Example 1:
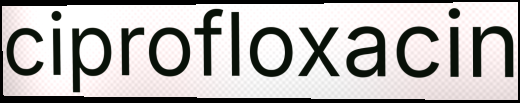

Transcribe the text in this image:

ciprofloxacin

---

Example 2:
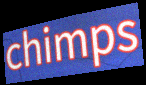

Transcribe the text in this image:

chimps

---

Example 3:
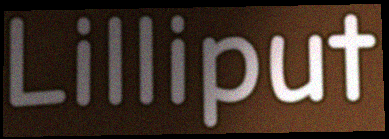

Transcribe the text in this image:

Lilliput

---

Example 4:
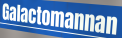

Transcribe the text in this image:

Galactomannan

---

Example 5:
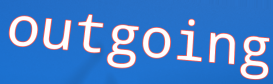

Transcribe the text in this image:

outgoing